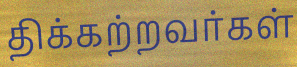
திக்கற்றவர்கள்